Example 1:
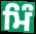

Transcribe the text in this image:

ਮਿੰ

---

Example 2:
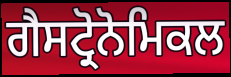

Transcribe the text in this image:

ਗੈਸਟ੍ਰੋਨੋਮਿਕਲ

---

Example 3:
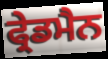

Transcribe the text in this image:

ਫ੍ਰੇਡਮੈਨ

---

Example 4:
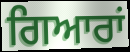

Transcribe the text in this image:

ਗਿਆਰਾਂ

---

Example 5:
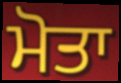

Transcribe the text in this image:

ਮੋਤਾ